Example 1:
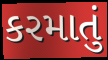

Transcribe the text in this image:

કરમાતું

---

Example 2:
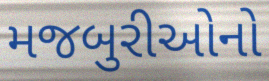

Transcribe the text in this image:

મજબુરીઓનો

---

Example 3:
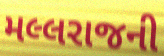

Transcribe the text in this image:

મલ્લરાજની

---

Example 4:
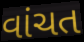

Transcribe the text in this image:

વાંચત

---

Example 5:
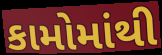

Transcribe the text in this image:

કામોમાંથી